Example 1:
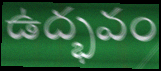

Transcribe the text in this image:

ఉద్భవం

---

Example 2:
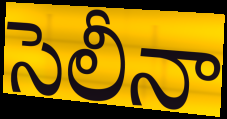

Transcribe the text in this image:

సెలీనా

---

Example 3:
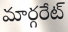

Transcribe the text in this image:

మార్గరేట్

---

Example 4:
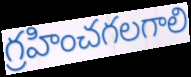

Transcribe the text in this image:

గ్రహించగలగాలి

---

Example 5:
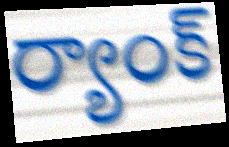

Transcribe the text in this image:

ర్యాంక్